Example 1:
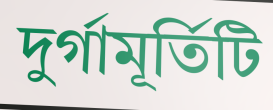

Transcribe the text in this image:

দুর্গামূর্তিটি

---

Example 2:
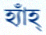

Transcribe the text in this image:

হ্যাঁহ্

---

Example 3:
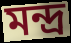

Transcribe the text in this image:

মন্দ্র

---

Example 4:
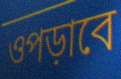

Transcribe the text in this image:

ওপড়াবে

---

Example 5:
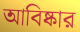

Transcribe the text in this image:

আবিষ্কার